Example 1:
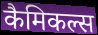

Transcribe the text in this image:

कैमिकल्स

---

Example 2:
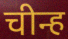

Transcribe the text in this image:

चीन्ह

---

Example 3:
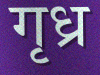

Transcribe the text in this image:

गृध्र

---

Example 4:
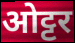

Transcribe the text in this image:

ओट्टर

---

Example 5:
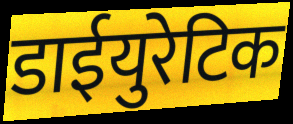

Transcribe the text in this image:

डाईयुरेटिक